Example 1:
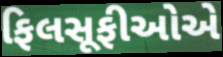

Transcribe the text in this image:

ફિલસૂફીઓએ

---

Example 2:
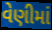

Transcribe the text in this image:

વેણીમાં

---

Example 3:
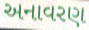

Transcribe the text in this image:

અનાવરણ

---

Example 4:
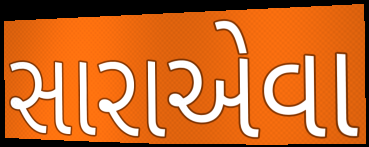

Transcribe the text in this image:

સારાએવા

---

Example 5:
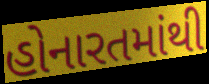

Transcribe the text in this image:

હોનારતમાંથી